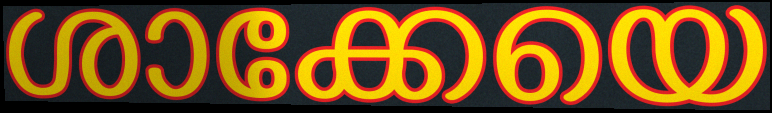
ശാക്കേയെ